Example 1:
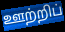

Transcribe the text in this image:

ஊற்றிப்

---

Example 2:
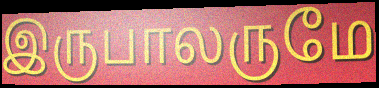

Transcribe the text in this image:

இருபாலருமே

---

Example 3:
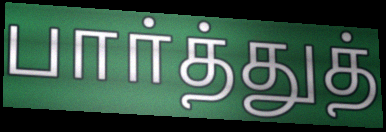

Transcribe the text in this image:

பார்த்துத்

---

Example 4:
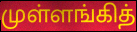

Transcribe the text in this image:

முள்ளங்கித்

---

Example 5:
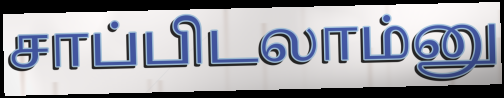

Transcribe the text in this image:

சாப்பிடலாம்னு